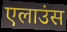
एलाउंस